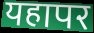
यहापर